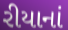
રીયાનાં